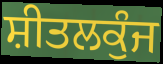
ਸ਼ੀਤਲਕੁੰਜ